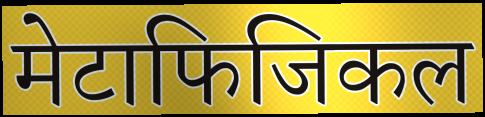
मेटाफिजिकल